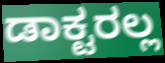
ಡಾಕ್ಟರಲ್ಲ